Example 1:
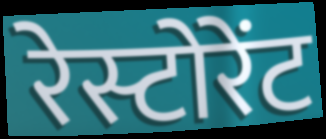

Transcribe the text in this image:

रेस्‍टोरेंट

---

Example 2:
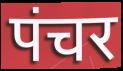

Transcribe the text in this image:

पंचर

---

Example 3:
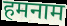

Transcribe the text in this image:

हमनाम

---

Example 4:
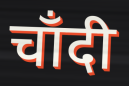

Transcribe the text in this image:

चाँदी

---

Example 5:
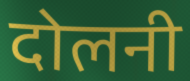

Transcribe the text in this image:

दोलनी